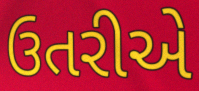
ઉતરીએ